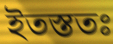
ইতস্ততঃ